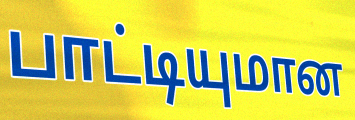
பாட்டியுமான